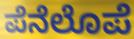
ಪೆನೆಲೊಪೆ